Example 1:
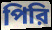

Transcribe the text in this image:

পিরি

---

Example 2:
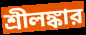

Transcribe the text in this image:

শ্রীলঙ্কার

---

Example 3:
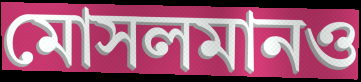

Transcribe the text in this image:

মোসলমানও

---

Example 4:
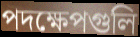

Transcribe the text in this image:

পদক্ষেপগুলি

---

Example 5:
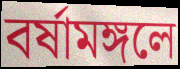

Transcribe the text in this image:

বর্ষামঙ্গলে